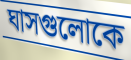
ঘাসগুলোকে